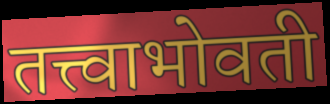
तत्त्वाभोवती